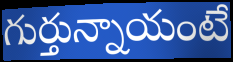
గుర్తున్నాయంటే